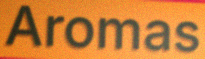
Aromas